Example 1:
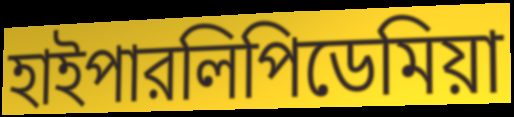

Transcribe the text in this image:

হাইপারলিপিডেমিয়া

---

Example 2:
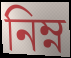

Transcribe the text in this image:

নিম্ন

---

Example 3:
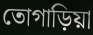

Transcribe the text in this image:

তোগাড়িয়া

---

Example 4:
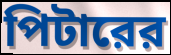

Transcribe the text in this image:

পিটারের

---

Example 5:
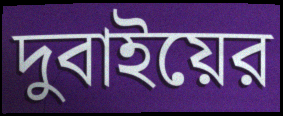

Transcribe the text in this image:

দুবাইয়ের